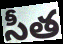
సీత